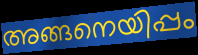
അങ്ങനെയിപ്പം